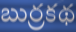
బుర్రకథ